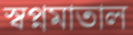
স্বপ্নমাতাল